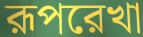
রূপরেখা